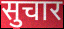
सुचार